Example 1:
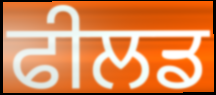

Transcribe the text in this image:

ਫੀਲਡ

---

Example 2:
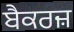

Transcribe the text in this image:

ਬੈਕਰਜ਼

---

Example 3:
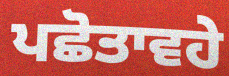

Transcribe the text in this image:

ਪਛੋਤਾਵਹੇ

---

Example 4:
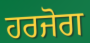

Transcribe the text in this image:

ਹਰਜੋਗ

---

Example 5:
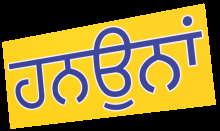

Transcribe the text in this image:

ਹਨਉਨਾਂ